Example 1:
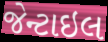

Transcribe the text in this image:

જેન્ટાઇલ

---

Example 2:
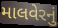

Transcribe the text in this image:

માલવેરનું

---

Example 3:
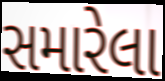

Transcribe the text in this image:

સમારેલા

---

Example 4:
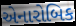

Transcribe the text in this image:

એનારોબિક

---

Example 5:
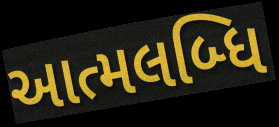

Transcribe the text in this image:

આત્મલબ્ધિ